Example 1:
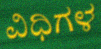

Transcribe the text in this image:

ವಿಧಿಗಳ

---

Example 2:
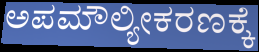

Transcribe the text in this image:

ಅಪಮೌಲ್ಯೀಕರಣಕ್ಕೆ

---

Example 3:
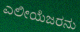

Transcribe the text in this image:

ಎಲೀಯೆಜರನು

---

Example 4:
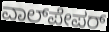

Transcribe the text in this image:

ವಾಲ್‌ಪೇಪರ್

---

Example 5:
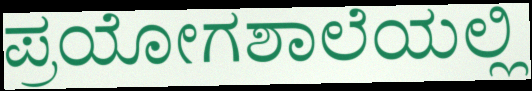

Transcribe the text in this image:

ಪ್ರಯೋಗಶಾಲೆಯಲ್ಲಿ